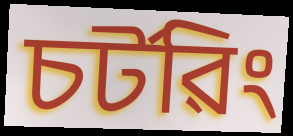
চৰ্টৱিং